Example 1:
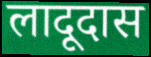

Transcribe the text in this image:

लादूदास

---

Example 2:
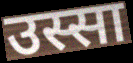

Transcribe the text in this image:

उस्सा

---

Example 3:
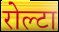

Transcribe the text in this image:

रोल्टा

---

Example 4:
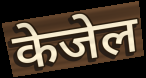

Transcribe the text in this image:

केजेल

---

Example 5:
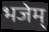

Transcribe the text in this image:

भजेम्